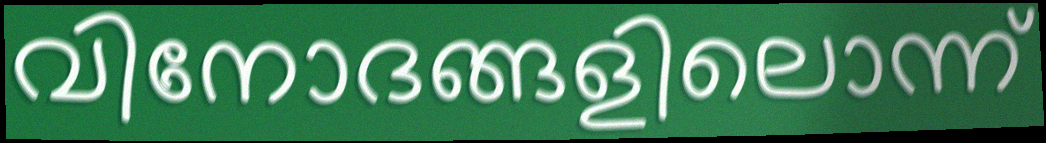
വിനോദങ്ങളിലൊന്ന്